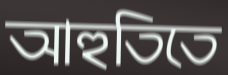
আহুতিতে